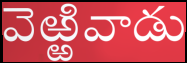
వెఱ్ఱివాడు